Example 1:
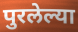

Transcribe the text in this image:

पुरलेल्या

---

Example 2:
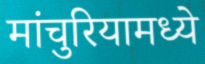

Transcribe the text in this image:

मांचुरियामध्ये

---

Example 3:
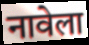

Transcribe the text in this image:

नावेला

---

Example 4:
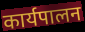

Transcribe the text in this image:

कार्यपालन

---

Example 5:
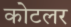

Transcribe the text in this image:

कोटलर